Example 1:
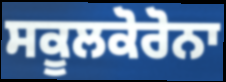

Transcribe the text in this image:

ਸਕੂਲਕੋਰੋਨਾ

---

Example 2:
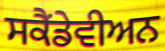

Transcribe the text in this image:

ਸਕੈਂਡੇਵੀਅਨ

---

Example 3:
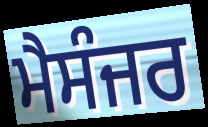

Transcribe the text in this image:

ਮੈਸੰਜਰ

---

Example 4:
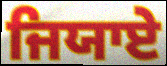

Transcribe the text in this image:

ਜਿਯਾਏ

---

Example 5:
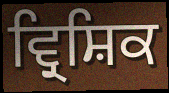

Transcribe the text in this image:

ਵ੍ਰਿਸ਼ਿਕ